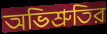
অভিশ্রুতির